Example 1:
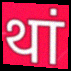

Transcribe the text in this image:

थां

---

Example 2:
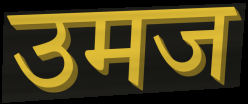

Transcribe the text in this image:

उमज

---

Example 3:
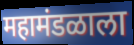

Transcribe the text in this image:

महामंडळाला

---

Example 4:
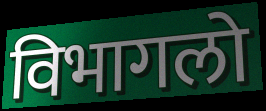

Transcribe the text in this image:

विभागलो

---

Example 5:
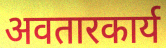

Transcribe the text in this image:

अवतारकार्य